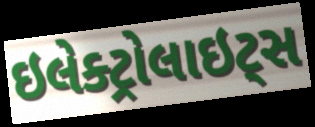
ઇલેક્ટ્રોલાઇટ્સ